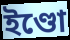
ইণ্ডো